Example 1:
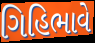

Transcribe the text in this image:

ગિહિભાવે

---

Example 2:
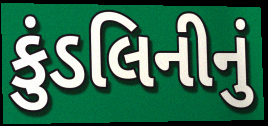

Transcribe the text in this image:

કુંડલિનીનું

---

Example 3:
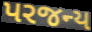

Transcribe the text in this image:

પરજન્ય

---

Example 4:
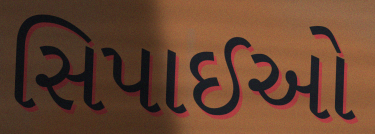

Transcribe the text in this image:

સિપાઈઓ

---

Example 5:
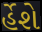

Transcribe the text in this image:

ર્હેશે